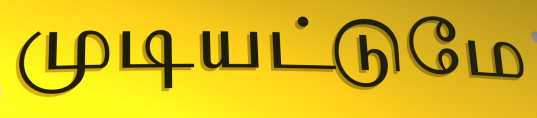
முடியட்டுமே